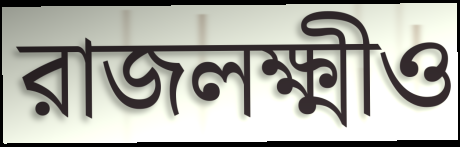
রাজলক্ষ্মীও